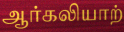
ஆர்கலியாற்